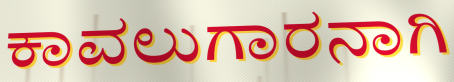
ಕಾವಲುಗಾರನಾಗಿ